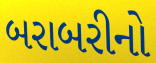
બરાબરીનો